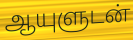
ஆயுளுடன்